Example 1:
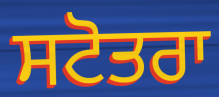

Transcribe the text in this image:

ਸਟੋਤਰਾ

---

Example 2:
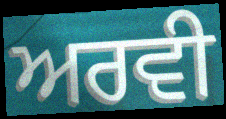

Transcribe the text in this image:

ਅਰਵੀ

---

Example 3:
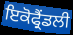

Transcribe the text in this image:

ਇਕੋਫ੍ਰੈਂਡਲੀ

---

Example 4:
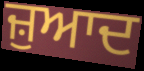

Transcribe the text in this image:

ਜ਼ੁਆਦ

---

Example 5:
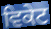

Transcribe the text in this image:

ਵਿਕੇਟ